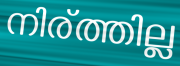
നിര്ത്തില്ല